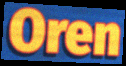
Oren